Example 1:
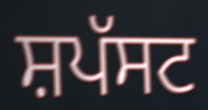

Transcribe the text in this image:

ਸ਼ਪੱਸਟ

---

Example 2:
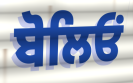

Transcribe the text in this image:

ਬੋਲਿਓਂ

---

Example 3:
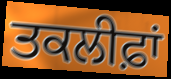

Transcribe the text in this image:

ਤਕਲੀਫ਼ਾਂ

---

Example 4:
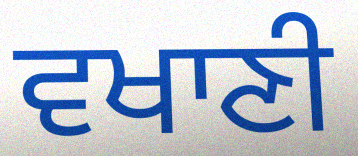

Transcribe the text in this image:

ਵਖਾਣੀ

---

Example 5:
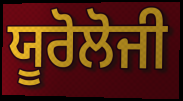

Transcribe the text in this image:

ਯੂਰੋਲੋਜੀ